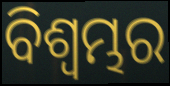
ବିଶ୍ବମ୍ଭର